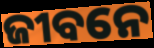
ଜୀବନେ